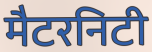
मैटरनिटी